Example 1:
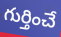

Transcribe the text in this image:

గుర్తించే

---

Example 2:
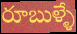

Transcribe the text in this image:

రూబుళ్ళే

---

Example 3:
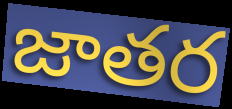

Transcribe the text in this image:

జాతర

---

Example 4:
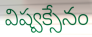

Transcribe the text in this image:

విష్వక్సేనం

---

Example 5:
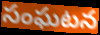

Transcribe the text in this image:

సంఘటన